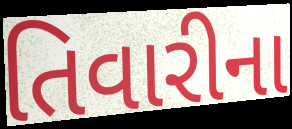
તિવારીના